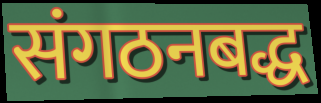
संगठनबद्ध